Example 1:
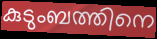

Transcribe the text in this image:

കുടുംബത്തിനെ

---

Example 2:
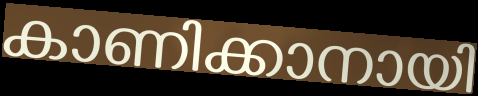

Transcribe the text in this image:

കാണിക്കാനായി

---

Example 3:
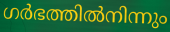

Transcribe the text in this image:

ഗർഭത്തിൽനിന്നും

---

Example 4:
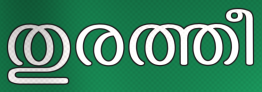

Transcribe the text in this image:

തുരത്തീ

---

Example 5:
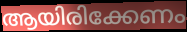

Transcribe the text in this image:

ആയിരിക്കേണം